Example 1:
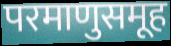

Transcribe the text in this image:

परमाणुसमूह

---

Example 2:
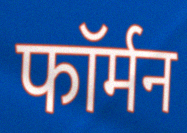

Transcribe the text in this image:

फॉर्मन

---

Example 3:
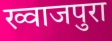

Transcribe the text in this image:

ख्वाजपुरा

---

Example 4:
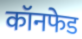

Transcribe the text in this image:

कॉनफेड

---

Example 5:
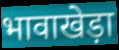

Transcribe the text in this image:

भावाखेड़ा